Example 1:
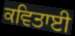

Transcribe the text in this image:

ਕਵਿਤਾਈ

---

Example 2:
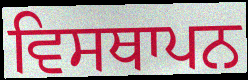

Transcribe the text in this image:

ਵਿਸਥਾਪਨ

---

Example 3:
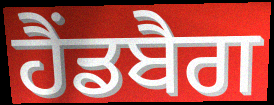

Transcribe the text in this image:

ਹੈਂਡਬੈਗ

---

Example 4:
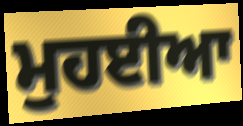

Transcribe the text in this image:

ਮੁਹਈਆ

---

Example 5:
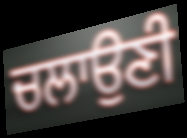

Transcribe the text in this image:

ਚਲਾਉਣੀ